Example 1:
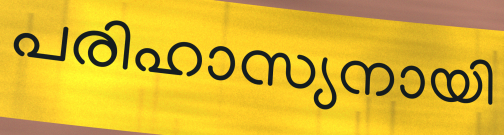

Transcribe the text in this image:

പരിഹാസ്യനായി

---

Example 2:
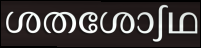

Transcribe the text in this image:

ശതശോഽഥ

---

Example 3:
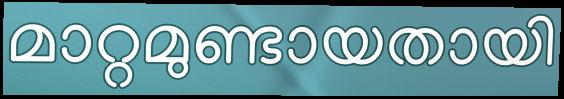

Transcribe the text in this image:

മാറ്റമുണ്ടായതായി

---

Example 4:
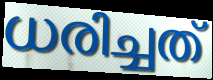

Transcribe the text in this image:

ധരിച്ചത്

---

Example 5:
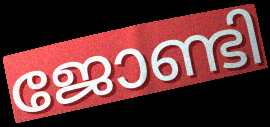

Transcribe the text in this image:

ജോണ്ടി